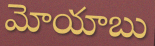
మోయాబు